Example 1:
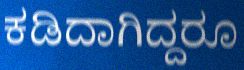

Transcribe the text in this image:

ಕಡಿದಾಗಿದ್ದರೂ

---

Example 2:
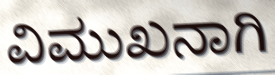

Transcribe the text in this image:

ವಿಮುಖನಾಗಿ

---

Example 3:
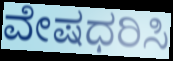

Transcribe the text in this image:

ವೇಷಧರಿಸಿ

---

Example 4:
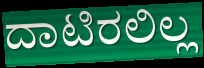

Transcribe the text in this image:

ದಾಟಿರಲಿಲ್ಲ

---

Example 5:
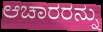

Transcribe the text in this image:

ಆಚಾರರನ್ನು